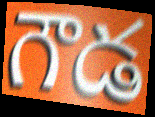
గౌడ